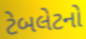
ટેબલેટનો